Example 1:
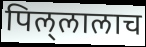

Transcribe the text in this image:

पिल्लालाच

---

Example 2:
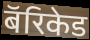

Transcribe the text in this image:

बॅरिकेड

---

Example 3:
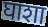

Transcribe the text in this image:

घाशा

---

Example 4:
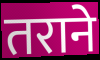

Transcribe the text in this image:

तराने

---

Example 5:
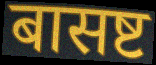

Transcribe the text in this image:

बासष्ट